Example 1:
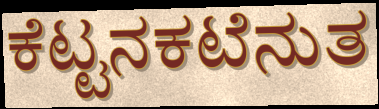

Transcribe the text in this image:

ಕೆಟ್ಟನಕಟೆನುತ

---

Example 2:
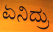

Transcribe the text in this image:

ಏನಿದ್ರು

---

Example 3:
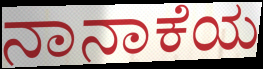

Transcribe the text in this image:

ನಾನಾಕೆಯ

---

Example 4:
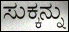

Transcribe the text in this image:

ಸುಕ್ಕನ್ನು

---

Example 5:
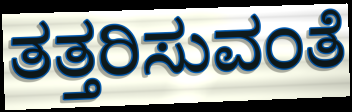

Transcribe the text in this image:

ತತ್ತರಿಸುವಂತೆ